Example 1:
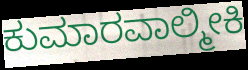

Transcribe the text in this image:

ಕುಮಾರವಾಲ್ಮೀಕಿ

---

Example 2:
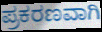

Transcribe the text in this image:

ಪ್ರಕರಣವಾಗಿ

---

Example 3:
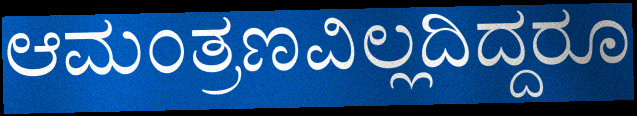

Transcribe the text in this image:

ಆಮಂತ್ರಣವಿಲ್ಲದಿದ್ದರೂ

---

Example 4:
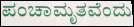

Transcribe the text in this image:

ಪಂಚಾಮೃತವೆಂದು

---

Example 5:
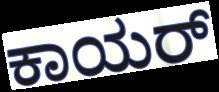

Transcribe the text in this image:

ಕಾಯರ್